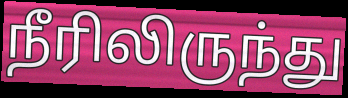
நீரிலிருந்து